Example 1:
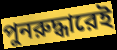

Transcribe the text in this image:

পুনরুদ্ধারেই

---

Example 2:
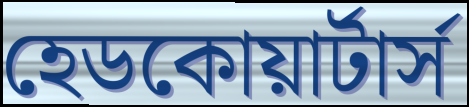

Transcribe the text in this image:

হেডকোয়ার্টার্স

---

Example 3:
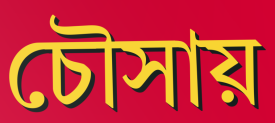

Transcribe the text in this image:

চৌসায়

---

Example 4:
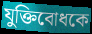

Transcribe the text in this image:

যুক্তিবোধকে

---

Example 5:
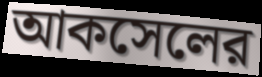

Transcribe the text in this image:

আকসেলের